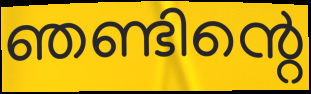
ഞണ്ടിന്റെ